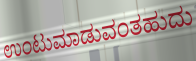
ಉಂಟುಮಾಡುವಂತಹುದು